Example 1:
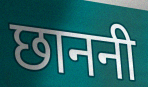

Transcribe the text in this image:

छाननी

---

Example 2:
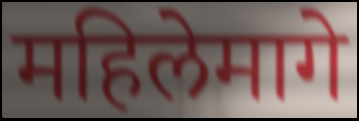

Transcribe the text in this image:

महिलेमागे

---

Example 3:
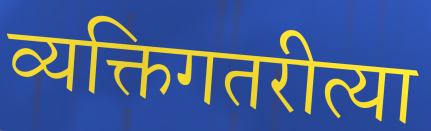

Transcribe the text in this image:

व्यक्तिगतरीत्या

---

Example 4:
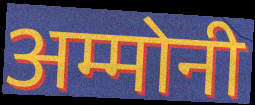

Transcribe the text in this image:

अम्मोनी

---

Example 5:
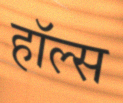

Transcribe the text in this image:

हॉल्स